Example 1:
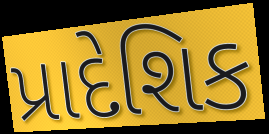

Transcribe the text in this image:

પ્રાદેશિક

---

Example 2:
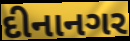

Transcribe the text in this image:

દીનાનગર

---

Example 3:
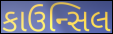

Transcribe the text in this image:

કાઉન્સિલ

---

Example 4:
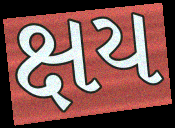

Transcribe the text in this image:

ક્ષય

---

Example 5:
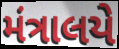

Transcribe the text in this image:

મંત્રાલયે